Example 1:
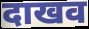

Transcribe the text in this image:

दाखव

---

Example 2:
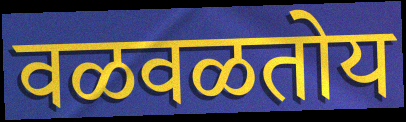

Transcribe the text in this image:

वळवळतोय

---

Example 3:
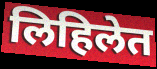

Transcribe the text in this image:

लिहिलेत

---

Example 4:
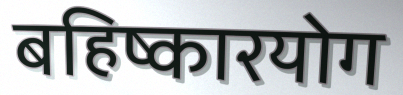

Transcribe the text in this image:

बहिष्कारयोग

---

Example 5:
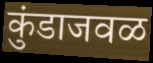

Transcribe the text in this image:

कुंडाजवळ